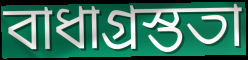
বাধাগ্ৰস্ততা